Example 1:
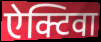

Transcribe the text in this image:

ऐक्टिवा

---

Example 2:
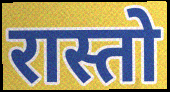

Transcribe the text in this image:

रास्तो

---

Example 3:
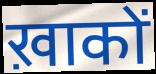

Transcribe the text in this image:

ख़ाकों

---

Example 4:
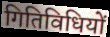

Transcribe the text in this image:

गितिविधियों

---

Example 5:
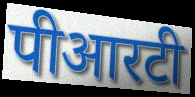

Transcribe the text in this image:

पीआरटी